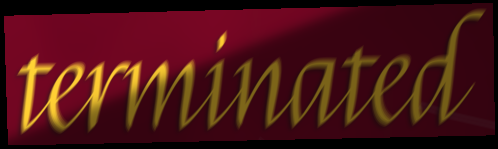
terminated